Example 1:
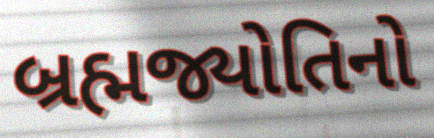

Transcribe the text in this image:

બ્રહ્મજ્યોતિનો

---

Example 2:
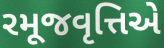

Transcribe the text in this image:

રમૂજવૃત્તિએ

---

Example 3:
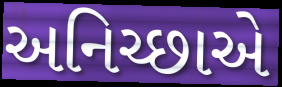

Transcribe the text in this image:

અનિચ્છાએ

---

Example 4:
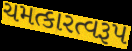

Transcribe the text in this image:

ચમત્કારત્વરૂપ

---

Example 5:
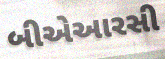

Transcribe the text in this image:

બીએઆરસી